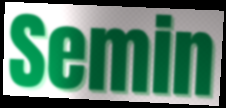
Semin